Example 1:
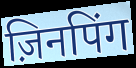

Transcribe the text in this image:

ज़िनपिंग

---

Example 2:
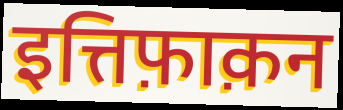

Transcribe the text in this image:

इत्तिफ़ाक़न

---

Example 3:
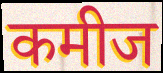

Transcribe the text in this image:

कमीज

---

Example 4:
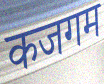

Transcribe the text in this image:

कजगम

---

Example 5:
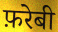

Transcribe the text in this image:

फ़रेबी